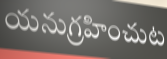
యనుగ్రహించుట